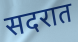
सदरात